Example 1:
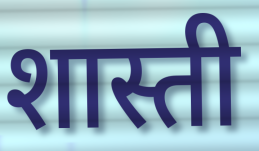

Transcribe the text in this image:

शास्ती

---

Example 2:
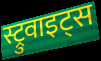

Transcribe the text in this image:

स्ट्रुवाइट्स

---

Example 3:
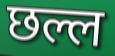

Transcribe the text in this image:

छल्ल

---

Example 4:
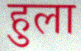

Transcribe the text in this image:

हुला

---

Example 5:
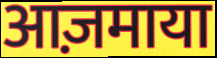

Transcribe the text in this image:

आज़माया